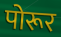
पोरूर